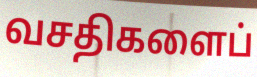
வசதிகளைப்